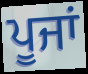
ਪੂਜਾਂ